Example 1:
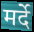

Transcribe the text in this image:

मर्दे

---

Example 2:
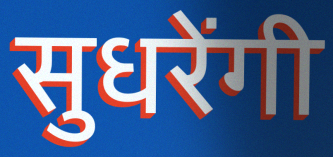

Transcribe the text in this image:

सुधरेंगी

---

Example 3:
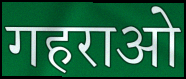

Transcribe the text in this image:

गहराओ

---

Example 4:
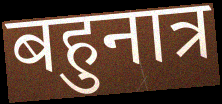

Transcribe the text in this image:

बहुनात्र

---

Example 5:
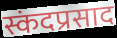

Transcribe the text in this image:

स्कंदप्रसाद